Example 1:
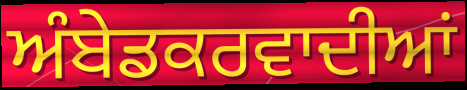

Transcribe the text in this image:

ਅੰਬੇਡਕਰਵਾਦੀਆਂ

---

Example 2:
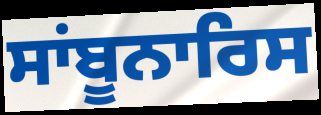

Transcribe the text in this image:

ਸਾਂਬੂਨਾਰਿਸ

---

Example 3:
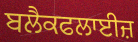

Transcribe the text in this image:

ਬਲੈਕਫਲਾਈਜ਼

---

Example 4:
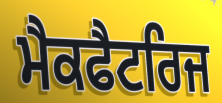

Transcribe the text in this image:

ਮੈਕਫੈਟਰਿਜ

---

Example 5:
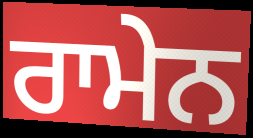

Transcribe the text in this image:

ਰਾਮੇਨ